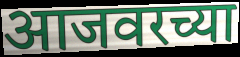
आजवरच्या